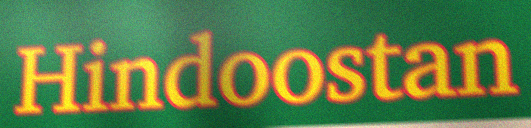
Hindoostan